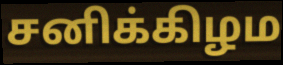
சனிக்கிழம